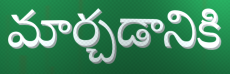
మార్చడానికి